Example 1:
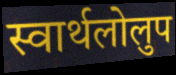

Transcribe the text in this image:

स्वार्थलोलुप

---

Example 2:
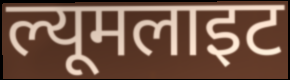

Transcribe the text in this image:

ल्यूमलाइट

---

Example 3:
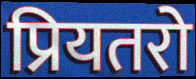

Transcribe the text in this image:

प्रियतरो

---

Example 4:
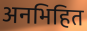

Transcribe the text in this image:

अनभिहित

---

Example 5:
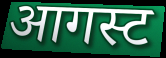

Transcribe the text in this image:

आगस्ट